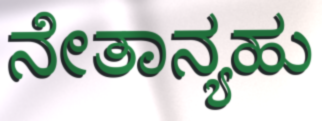
ನೇತಾನ್ಯಹು